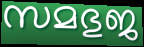
സമഭുജ